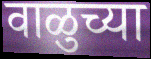
वाळुच्या